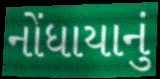
નોંધાયાનું